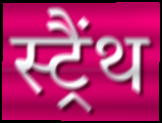
स्ट्रैंथ